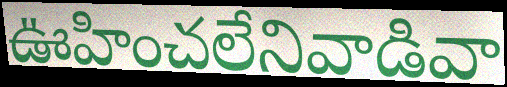
ఊహించలేనివాడివా